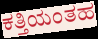
ಕತ್ತಿಯಂತಹ